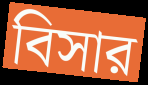
বিসার